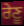
ਰੇਣੂ